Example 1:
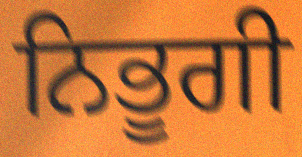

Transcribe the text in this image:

ਨਿਭੂਗੀ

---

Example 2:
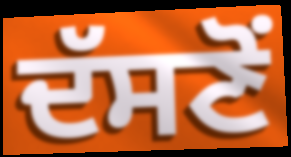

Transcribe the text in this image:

ਦੱਸਣੋਂ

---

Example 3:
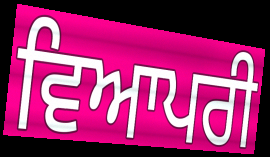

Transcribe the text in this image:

ਵਿਆਪਰੀ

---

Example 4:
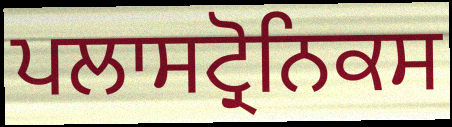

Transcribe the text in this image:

ਪਲਾਸਟ੍ਰੋਨਿਕਸ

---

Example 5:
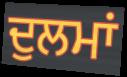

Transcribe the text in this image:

ਦੁਲਮਾਂ